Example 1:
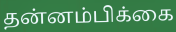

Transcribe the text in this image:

தன்னம்பிக்கை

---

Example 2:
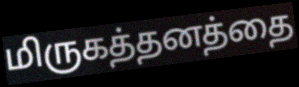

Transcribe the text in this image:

மிருகத்தனத்தை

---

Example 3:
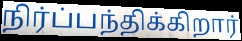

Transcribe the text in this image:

நிர்ப்பந்திக்கிறார்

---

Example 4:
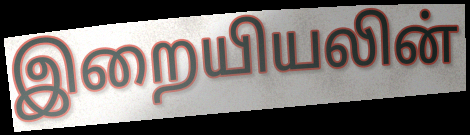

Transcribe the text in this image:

இறையியலின்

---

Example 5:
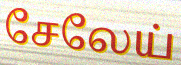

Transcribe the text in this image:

சேலேய்